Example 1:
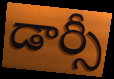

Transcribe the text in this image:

డార్సీ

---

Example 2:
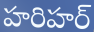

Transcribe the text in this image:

హరిహర్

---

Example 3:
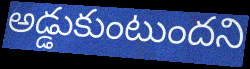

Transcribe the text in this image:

అడ్డుకుంటుందని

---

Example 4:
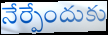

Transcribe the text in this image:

నేర్పేందుకు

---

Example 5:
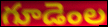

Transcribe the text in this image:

గూడెంల